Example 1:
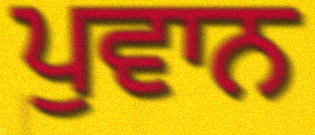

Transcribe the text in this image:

ਪੁਵਾਨ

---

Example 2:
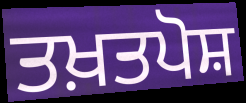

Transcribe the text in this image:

ਤਖ਼ਤਪੋਸ਼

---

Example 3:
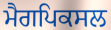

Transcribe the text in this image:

ਮੈਗਪਿਕਸਲ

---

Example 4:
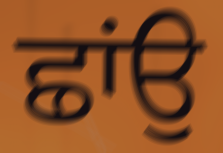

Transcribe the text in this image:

ਛਾਂਉ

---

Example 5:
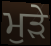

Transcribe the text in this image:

ਮੁੜੇ